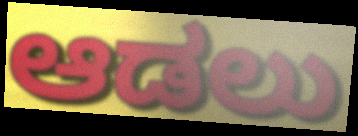
ಆಡಲು